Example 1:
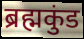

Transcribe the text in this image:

ब्रह्मकुंड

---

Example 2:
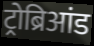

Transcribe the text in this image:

ट्रोब्रिआंड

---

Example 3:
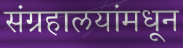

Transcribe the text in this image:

संग्रहालयांमधून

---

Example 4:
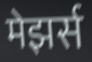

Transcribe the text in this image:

मेझर्स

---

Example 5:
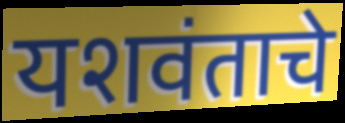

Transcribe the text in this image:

यशवंताचे